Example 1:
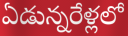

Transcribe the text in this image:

ఏడున్నరేళ్లలో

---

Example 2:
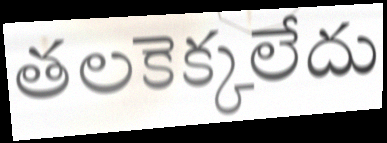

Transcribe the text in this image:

తలకెక్కలేదు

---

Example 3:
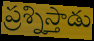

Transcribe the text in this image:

ప్రశ్నిస్తాడు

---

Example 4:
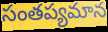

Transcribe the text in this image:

సంతప్యమాన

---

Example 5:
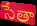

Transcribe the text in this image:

సేతా